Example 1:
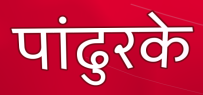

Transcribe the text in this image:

पांढुरके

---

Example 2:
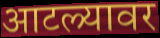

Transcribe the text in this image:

आटल्यावर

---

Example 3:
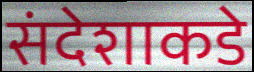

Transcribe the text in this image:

संदेशाकडे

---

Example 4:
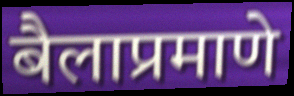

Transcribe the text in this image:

बैलाप्रमाणे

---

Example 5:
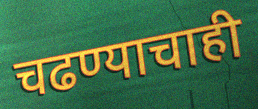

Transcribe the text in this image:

चढण्याचाही